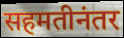
सहमतीनंतर